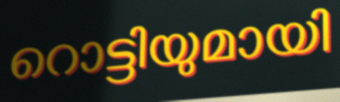
റൊട്ടിയുമായി